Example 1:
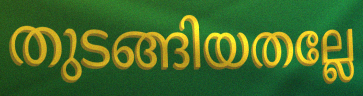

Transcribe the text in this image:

തുടങ്ങിയതല്ലേ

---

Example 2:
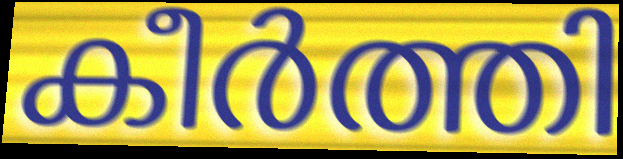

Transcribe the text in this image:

കീർത്തി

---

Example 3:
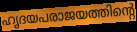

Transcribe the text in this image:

ഹൃദയപരാജയത്തിന്റെ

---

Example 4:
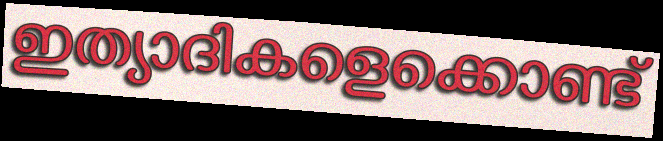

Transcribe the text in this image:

ഇത്യാദികളെക്കൊണ്ട്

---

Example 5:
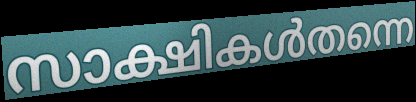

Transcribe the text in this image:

സാക്ഷികൾതന്നെ